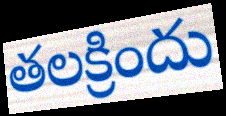
తలక్రిందు